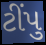
ટીંપુ